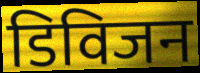
डिविजन